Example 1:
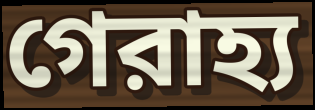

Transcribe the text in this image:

গেরাহ্য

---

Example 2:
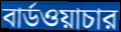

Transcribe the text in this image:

বার্ডওয়াচার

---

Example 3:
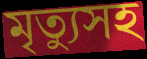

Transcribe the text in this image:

মৃত্যুসহ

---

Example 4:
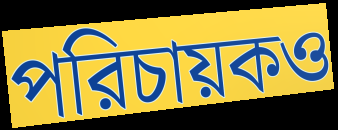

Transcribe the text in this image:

পরিচায়কও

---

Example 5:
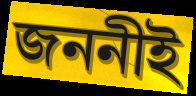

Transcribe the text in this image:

জননীই